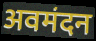
अवमंदन